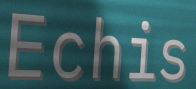
Echis